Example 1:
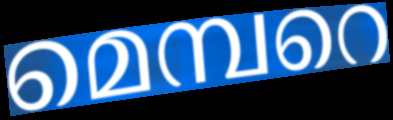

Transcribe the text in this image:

മെമ്പറെ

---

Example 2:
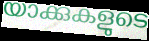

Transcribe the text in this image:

യാക്കുകളുടെ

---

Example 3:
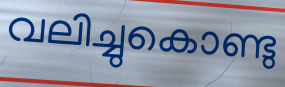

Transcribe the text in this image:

വലിച്ചുകൊണ്ടു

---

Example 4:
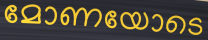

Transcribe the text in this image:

മോണയോടെ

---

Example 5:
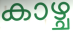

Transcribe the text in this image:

കാഴ്ച